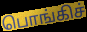
பொங்கிச்